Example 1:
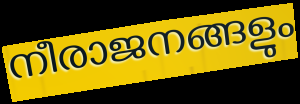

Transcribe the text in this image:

നീരാജനങ്ങളും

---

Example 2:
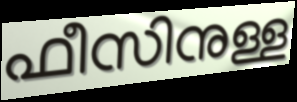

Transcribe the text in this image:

ഫീസിനുള്ള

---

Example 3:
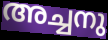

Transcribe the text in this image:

അച്ചനു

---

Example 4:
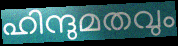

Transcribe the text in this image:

ഹിന്ദുമതവും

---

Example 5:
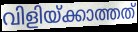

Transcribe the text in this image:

വിളിയ്ക്കാത്തത്